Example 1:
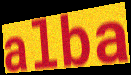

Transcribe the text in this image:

alba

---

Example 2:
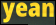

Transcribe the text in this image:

yean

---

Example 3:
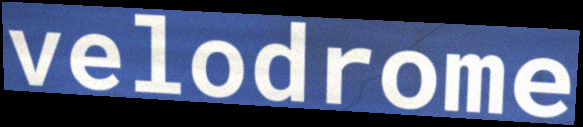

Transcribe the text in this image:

velodrome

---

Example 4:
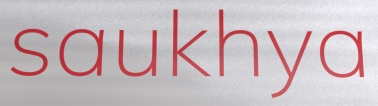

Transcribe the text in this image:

saukhya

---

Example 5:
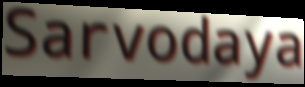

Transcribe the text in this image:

Sarvodaya